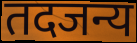
तदजन्य